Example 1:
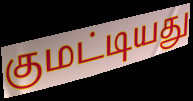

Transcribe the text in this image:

குமட்டியது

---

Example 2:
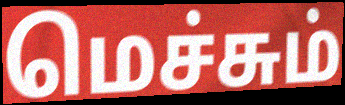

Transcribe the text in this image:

மெச்சும்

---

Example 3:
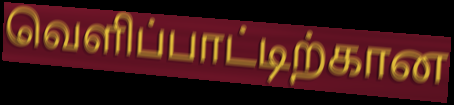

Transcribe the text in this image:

வெளிப்பாட்டிற்கான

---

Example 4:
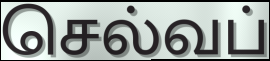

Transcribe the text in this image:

செல்வப்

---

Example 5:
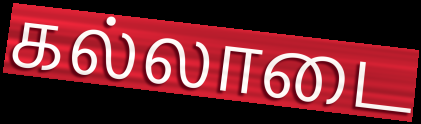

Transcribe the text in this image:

கல்லாடை